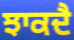
ਝਾਕਦੈ